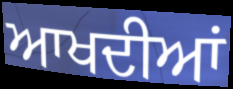
ਆਖਦੀਆਂ